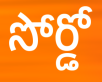
సోర్డో